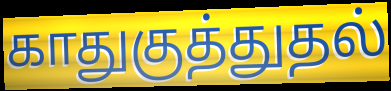
காதுகுத்துதல்